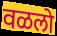
वळलो